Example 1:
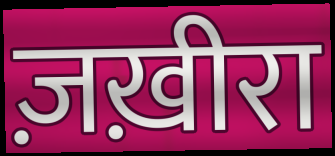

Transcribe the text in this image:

ज़ख़ीरा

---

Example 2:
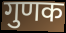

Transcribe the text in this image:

गुणक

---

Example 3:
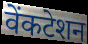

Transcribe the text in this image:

वेंकटेशन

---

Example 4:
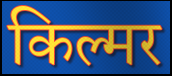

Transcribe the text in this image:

किल्मर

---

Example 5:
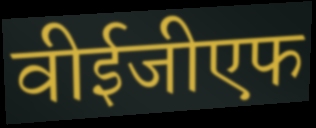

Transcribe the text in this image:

वीईजीएफ